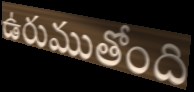
ఉరుముతోంది